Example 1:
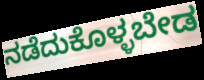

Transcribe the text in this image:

ನಡೆದುಕೊಳ್ಳಬೇಡ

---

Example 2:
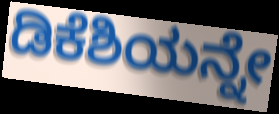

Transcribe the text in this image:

ಡಿಕೆಶಿಯನ್ನೇ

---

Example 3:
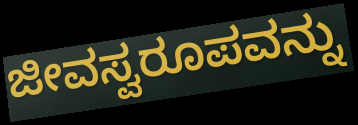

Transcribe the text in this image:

ಜೀವಸ್ವರೂಪವನ್ನು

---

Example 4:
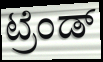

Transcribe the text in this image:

ಟ್ರೆಂಡ್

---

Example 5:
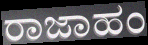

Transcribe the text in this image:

ರಾಜಾಹಂ